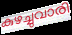
കുഴച്ചുവാരി